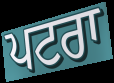
ਪਟਰਾ